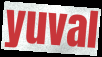
yuval